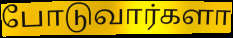
போடுவார்களா